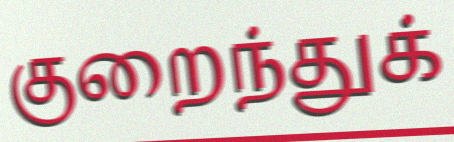
குறைந்துக்